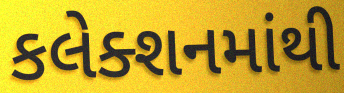
કલેક્શનમાંથી